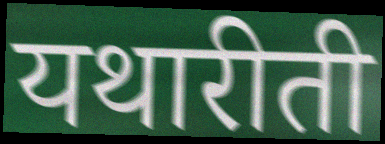
यथारीती